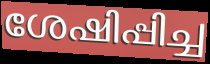
ശേഷിപ്പിച്ച